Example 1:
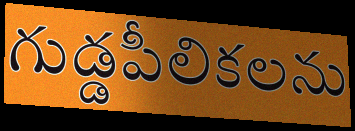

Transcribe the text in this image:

గుడ్డపీలికలను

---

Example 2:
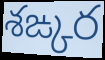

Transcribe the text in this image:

శఙ్కర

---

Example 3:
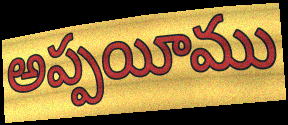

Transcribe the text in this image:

అప్పయీము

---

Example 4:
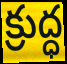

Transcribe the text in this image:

క్రుద్ధ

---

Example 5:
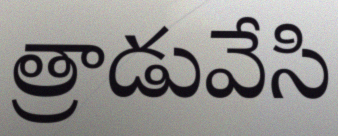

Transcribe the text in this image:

త్రాడువేసి